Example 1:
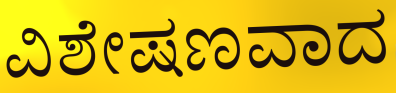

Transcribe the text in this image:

ವಿಶೇಷಣವಾದ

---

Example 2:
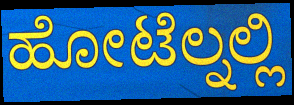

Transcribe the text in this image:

ಹೋಟೆಲ್ನಲ್ಲಿ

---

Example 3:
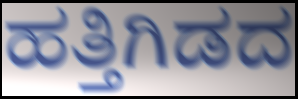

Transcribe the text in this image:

ಹತ್ತಿಗಿಡದ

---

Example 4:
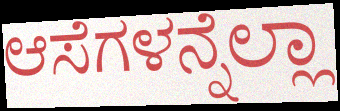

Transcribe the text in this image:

ಆಸೆಗಳನ್ನೆಲ್ಲಾ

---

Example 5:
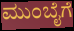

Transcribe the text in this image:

ಮುಂಬೈಗೆ